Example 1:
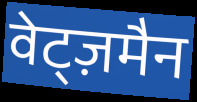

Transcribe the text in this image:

वेट्ज़मैन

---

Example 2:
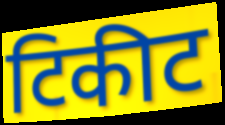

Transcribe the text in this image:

टिकीट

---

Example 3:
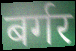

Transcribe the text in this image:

बर्गर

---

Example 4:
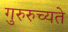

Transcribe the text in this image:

गुरुरुच्यते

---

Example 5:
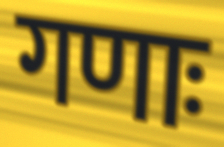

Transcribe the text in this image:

गणाः